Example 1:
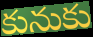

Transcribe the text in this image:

కునుకు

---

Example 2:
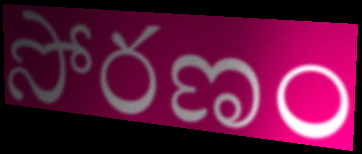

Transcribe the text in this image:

సోరణం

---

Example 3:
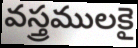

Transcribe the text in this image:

వస్త్రములకై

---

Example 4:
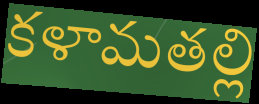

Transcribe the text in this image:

కళామతల్లి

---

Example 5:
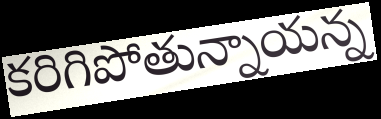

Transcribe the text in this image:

కరిగిపోతున్నాయన్న